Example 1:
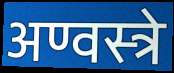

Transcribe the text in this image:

अण्वस्त्रे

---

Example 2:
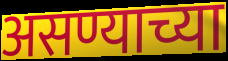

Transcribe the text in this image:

असण्याच्या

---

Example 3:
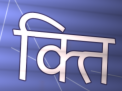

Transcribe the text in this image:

क्ति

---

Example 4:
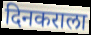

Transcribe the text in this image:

दिनकराला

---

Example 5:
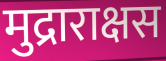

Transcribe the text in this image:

मुद्राराक्षस